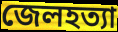
জেলহত্যা